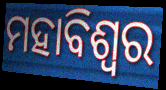
ମହାବିଶ୍ଵର